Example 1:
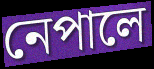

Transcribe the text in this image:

নেপালে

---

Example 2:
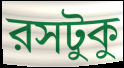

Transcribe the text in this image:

রসটুকু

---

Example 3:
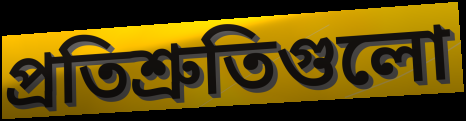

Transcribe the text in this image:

প্রতিশ্রুতিগুলো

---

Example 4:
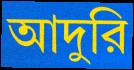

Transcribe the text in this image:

আদুরি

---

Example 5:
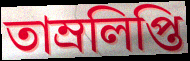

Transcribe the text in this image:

তাম্রলিপ্তি